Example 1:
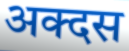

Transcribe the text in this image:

अक्दस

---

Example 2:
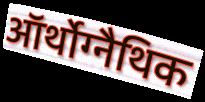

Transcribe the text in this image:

ऑर्थोग्नैथिक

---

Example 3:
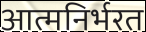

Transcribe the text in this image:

आत्मनिर्भरत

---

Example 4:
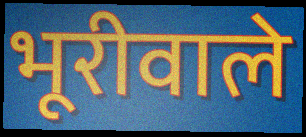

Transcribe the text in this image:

भूरीवाले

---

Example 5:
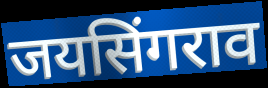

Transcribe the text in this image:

जयसिंगराव